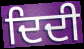
ਦਿਦੀ